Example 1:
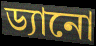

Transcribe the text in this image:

ড্যানো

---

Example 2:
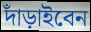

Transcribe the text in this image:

দাঁড়াইবেন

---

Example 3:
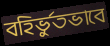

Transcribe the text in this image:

বহির্ভুতভাবে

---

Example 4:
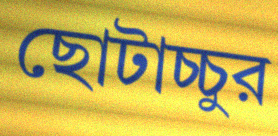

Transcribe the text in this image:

ছোটাচ্চুর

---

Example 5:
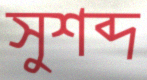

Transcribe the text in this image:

সুশব্দ